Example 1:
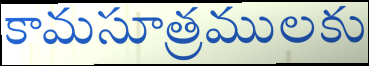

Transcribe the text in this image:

కామసూత్రములకు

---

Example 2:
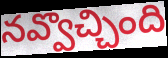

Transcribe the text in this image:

నవ్వొచ్చింది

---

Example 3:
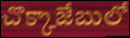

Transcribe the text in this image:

చొక్కాజేబులో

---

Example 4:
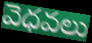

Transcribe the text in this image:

వెధవలు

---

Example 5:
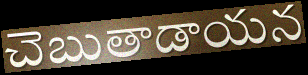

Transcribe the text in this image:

చెబుతాడాయన